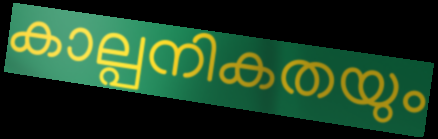
കാല്പനികതയും